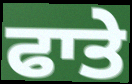
ਫਾਤੇ